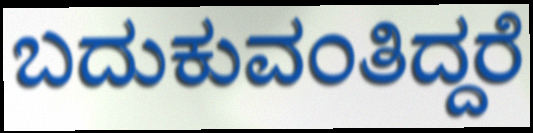
ಬದುಕುವಂತಿದ್ದರೆ